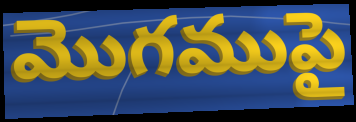
మొగముపై